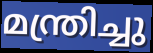
മന്ത്രിച്ചു